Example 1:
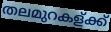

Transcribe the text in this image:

തലമുറകള്ക്ക്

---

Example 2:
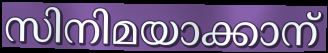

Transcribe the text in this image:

സിനിമയാക്കാന്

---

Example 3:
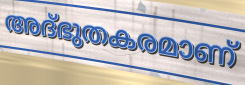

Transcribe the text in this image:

അദ്ഭുതകരമാണ്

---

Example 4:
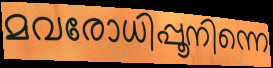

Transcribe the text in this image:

മവരോധിപ്പൂനിന്നെ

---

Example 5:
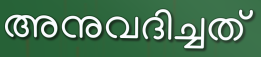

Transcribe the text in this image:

അനുവദിച്ചത്